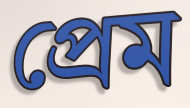
প্ৰেম